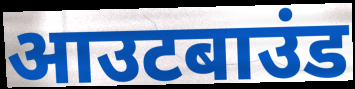
आउटबाउंड